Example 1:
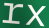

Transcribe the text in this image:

rx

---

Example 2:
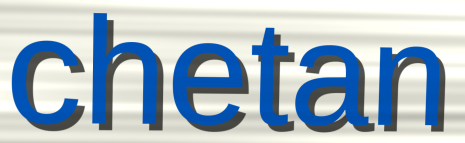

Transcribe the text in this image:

chetan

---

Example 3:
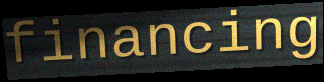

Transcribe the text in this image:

financing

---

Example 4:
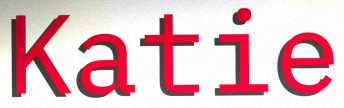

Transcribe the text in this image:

Katie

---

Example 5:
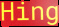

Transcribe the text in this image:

Hing